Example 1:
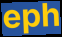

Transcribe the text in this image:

eph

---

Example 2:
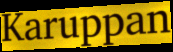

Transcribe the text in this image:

Karuppan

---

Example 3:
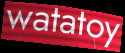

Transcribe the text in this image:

watatoy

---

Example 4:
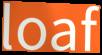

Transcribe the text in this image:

loaf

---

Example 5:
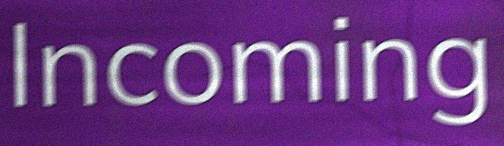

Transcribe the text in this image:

Incoming